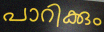
പാറിക്കും